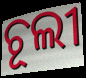
ଚୂଲୀ